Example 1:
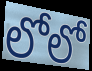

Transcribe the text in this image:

లోలో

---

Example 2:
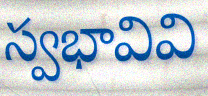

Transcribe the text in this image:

స్వభావివి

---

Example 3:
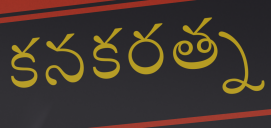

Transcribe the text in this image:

కనకరత్న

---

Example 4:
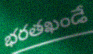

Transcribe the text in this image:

భరతఖండే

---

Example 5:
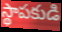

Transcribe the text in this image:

స్థాపకుడి